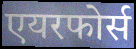
एयरफोर्स